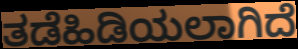
ತಡೆಹಿಡಿಯಲಾಗಿದೆ